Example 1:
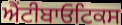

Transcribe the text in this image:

ਐਂਟੀਬਾਓਟਿਕਸ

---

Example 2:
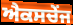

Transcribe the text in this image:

ਐਕਸਚੇਂਜ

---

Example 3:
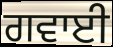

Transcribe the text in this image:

ਗਵਾਈ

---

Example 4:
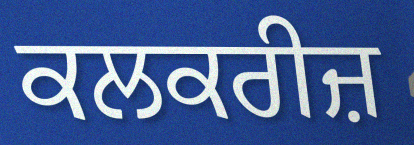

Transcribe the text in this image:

ਕਲਕਰੀਜ਼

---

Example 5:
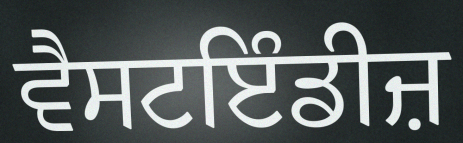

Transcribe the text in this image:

ਵੈਸਟਇੰਡੀਜ਼